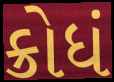
ક્રોધં